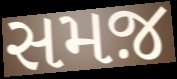
સમજ઼